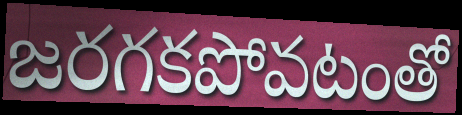
జరగకపోవటంతో